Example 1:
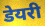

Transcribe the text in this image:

डेयरी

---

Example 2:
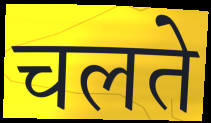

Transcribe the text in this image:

चलते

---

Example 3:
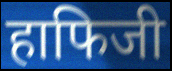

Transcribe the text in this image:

हाफिजी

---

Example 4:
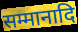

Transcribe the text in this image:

सम्मानादि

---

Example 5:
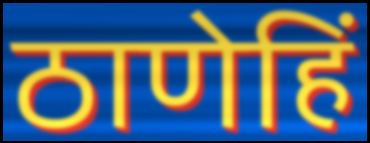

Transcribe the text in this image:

ठाणेहिं